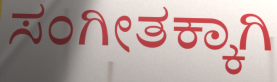
ಸಂಗೀತಕ್ಕಾಗಿ